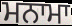
ਮਨਾਮਾ